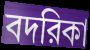
বদরিকা